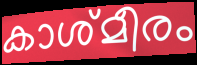
കാശ്മീരം